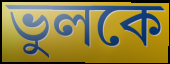
ভুলকে